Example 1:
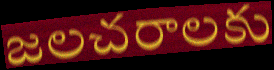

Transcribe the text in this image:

జలచరాలకు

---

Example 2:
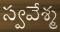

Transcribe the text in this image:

స్వవేశ్మ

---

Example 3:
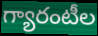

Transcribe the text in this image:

గ్యారంటీల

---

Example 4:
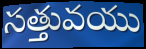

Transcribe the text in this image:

సత్తువయు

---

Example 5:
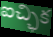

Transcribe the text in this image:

ఐచ్ఛిక